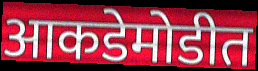
आकडेमोडीत